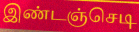
இண்டஞ்செடி